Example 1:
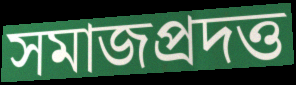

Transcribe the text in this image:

সমাজপ্রদত্ত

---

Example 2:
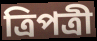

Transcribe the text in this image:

ত্রিপত্রী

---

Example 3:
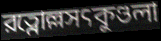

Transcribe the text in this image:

রত্নোল্লসৎকুণ্ডলা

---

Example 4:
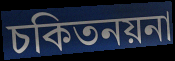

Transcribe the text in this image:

চকিতনয়না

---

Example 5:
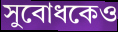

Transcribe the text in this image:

সুবোধকেও